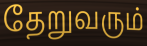
தேறுவரும்